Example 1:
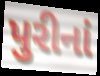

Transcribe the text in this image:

પુરીનાં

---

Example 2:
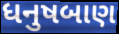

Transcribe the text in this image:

ધનુષબાણ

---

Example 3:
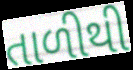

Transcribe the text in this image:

તાળીથી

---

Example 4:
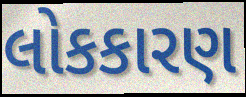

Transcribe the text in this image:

લોકકારણ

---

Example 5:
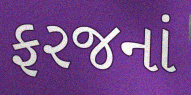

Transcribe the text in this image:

ફરજનાં